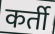
कर्ती